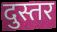
दुस्तर